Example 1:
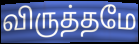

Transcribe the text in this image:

விருத்தமே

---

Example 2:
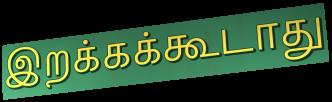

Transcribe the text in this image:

இறக்கக்கூடாது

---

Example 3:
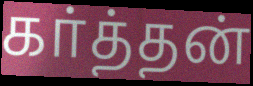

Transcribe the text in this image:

கர்த்தன்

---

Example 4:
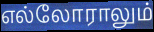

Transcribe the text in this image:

எல்லோராலும்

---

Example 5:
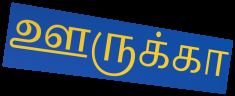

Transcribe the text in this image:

ஊருக்கா